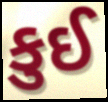
કુઈ